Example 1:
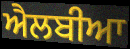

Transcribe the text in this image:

ਐਲਬੀਆ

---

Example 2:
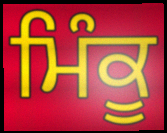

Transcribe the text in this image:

ਮਿੰਕੂ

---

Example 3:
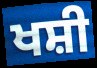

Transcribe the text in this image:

ਖਸ਼ੀ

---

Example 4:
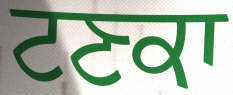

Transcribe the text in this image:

ਟਣਕਾ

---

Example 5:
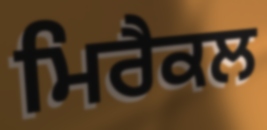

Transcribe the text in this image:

ਮਿਰੈਕਲ